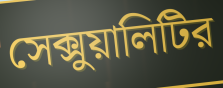
সেক্সুয়ালিটির